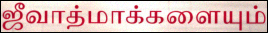
ஜீவாத்மாக்களையும்